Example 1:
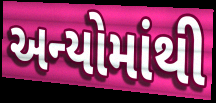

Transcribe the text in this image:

અન્યોમાંથી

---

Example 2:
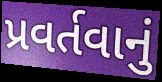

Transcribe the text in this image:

પ્રવર્તવાનું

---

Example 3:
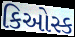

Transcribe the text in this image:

કિઓસ્ક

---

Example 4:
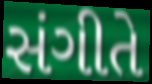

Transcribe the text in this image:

સંગીતે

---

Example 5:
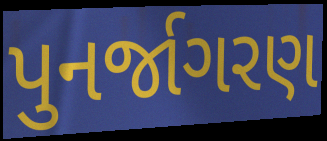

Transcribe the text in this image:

પુનર્જાગરણ